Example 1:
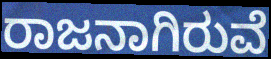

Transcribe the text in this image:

ರಾಜನಾಗಿರುವೆ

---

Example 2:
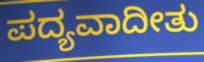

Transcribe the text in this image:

ಪದ್ಯವಾದೀತು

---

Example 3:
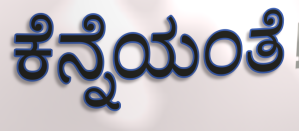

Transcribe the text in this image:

ಕೆನ್ನೆಯಂತೆ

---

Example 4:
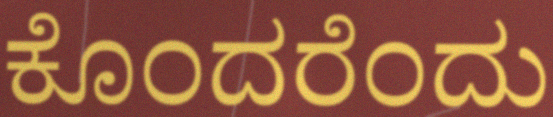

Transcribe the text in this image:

ಕೊಂದರೆಂದು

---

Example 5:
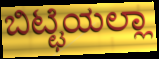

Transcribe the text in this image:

ಬಿಟ್ಟೆಯಲ್ಲಾ